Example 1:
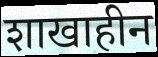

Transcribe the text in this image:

शाखाहीन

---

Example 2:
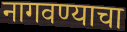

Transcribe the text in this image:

नागवण्याचा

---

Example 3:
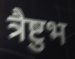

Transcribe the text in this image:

त्रैष्टुभ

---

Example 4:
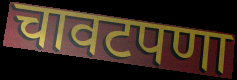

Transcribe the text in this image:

चावटपणा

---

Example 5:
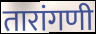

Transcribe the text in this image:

तारांगणी